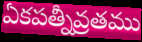
ఏకపత్నీవ్రతము